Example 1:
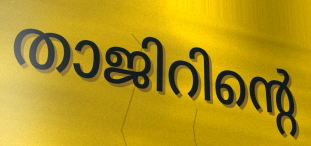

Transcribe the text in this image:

താജിറിന്റെ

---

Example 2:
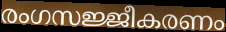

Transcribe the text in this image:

രംഗസജ്ജീകരണം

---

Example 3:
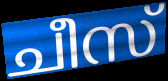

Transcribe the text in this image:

ചീസ്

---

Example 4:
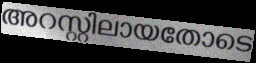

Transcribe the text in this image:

അറസ്റ്റിലായതോടെ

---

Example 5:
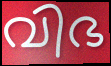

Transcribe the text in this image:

വിഭ